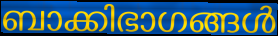
ബാക്കിഭാഗങ്ങൾ